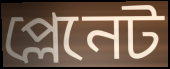
প্লেনেট